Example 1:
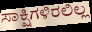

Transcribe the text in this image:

ಸಾಕ್ಷಿಗಳಿರಲಿಲ್ಲ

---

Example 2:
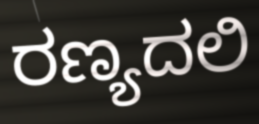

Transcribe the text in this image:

ರಣ್ಯದಲಿ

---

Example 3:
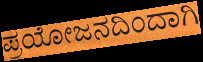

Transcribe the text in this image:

ಪ್ರಯೋಜನದಿಂದಾಗಿ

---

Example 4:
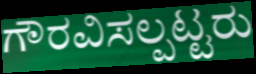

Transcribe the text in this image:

ಗೌರವಿಸಲ್ಪಟ್ಟರು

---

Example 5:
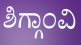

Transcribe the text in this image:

ಶಿಗ್ಗಾಂವಿ